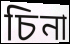
চিনা